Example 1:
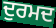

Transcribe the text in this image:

ਦੁਰਮਦ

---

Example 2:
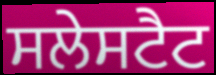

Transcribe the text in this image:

ਸਲੇਸਟੈਟ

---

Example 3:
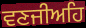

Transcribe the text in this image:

ਵਣਜੀਅਹਿ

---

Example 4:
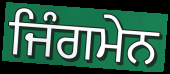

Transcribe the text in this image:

ਜਿੰਗਮੇਨ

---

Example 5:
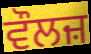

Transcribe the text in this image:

ਵੌਲਜ਼